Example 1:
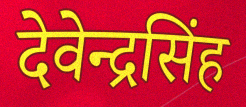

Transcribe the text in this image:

देवेन्द्रसिंह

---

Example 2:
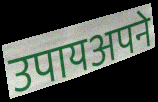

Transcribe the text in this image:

उपायअपने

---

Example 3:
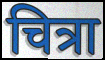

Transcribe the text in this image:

चित्रा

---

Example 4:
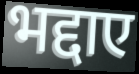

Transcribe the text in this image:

भद्दाए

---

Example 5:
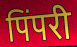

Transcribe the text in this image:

पिंपरी